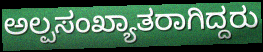
ಅಲ್ಪಸಂಖ್ಯಾತರಾಗಿದ್ದರು